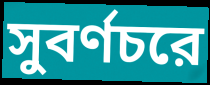
সুবর্ণচরে